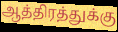
ஆத்திரத்துக்கு